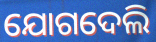
ଯୋଗଦେଲି